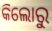
କିଲୋରୁ